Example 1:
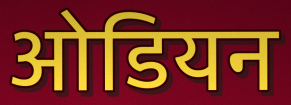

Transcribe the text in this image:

ओडियन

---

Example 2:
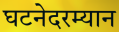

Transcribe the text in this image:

घटनेदरम्यान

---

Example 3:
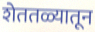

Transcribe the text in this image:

शेततळ्यातून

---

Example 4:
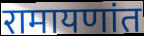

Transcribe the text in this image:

रामायणांत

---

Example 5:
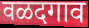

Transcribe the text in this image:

वळदगाव